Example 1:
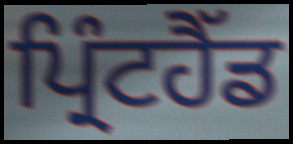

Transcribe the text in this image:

ਪ੍ਰਿੰਟਹੈੱਡ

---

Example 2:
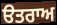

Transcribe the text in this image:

ੳਤਰਾਅ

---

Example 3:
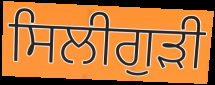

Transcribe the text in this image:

ਸਿਲੀਗੁੜੀ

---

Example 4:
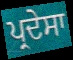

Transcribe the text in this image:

ਪ੍ਰਦੇਸਾ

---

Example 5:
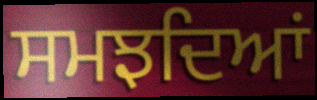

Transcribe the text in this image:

ਸਮਝਦਿਆਂ